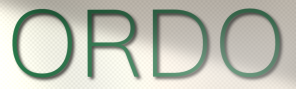
ORDO